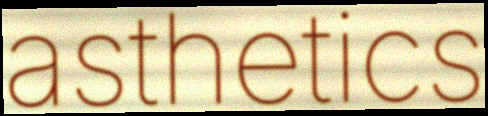
asthetics